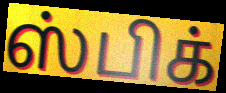
ஸ்பிக்